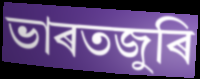
ভাৰতজুৰি